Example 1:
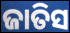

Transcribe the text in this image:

ଜାତିସ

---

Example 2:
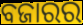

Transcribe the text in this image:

ବଜାରର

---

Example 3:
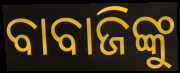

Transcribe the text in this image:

ବାବାଜିଙ୍କୁ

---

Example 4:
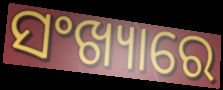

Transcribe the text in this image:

ସଂଖ୍ଯାରେ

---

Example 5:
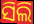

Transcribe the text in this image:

ସିଲି